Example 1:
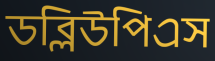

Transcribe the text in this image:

ডব্লিউপিএস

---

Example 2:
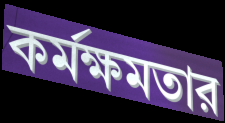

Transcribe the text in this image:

কর্মক্ষমতার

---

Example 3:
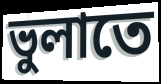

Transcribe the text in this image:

ভুলাতে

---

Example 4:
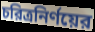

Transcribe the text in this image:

চরিত্রনির্ণয়ের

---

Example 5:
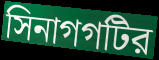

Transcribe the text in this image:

সিনাগগটির